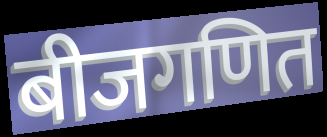
बीजगणित